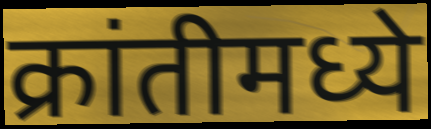
क्रांतीमध्ये